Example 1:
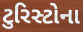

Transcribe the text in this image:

ટુરિસ્ટોના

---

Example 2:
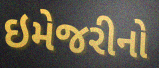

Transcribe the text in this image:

ઇમેજરીનો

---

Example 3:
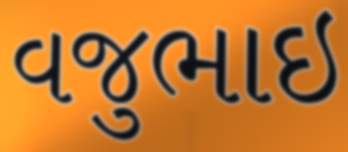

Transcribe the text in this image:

વજુભાઇ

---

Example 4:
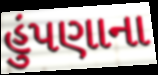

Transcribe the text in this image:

હુંપણાના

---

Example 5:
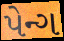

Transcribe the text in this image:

પેન્ગ